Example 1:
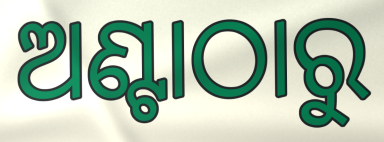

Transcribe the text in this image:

ଅଣ୍ଟାଠାରୁ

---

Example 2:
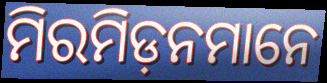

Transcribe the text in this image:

ମିରମିଡ଼ନମାନେ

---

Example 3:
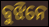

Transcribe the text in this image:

ବୁଝିନେ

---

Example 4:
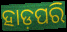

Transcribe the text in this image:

ହାଡ଼ପରି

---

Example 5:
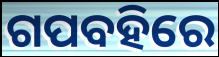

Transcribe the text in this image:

ଗପବହିରେ